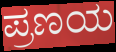
ಪ್ರಣಯ